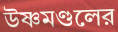
উষ্ণমণ্ডলের